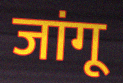
जांगू